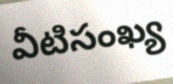
వీటిసంఖ్య